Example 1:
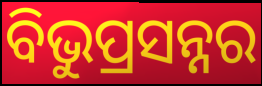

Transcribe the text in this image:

ବିଭୁପ୍ରସନ୍ନର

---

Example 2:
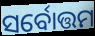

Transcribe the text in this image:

ସର୍ବୋତ୍ତମ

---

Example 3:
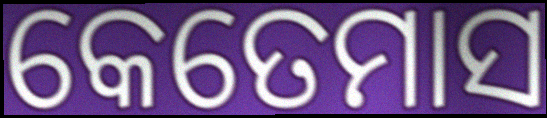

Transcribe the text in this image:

କେତେମାସ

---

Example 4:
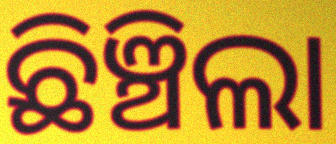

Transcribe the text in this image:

ଛିଞ୍ଚିଲା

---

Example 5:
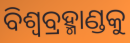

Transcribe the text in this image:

ବିଶ୍ବବ୍ରହ୍ମାଣ୍ଡକୁ